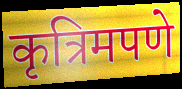
कृत्रिमपणे